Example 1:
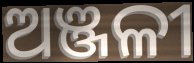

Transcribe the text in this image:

ଅଞ୍ଜଳୀ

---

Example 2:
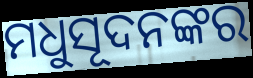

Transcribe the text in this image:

ମଧୁସୂଦନଙ୍କର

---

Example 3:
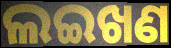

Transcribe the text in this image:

ଲଇଖଣ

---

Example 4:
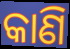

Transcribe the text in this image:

କାଣି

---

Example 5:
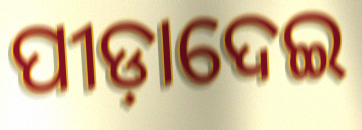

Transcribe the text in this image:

ପୀଡ଼ାଦେଇ